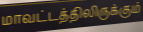
மாவட்டத்திலிருக்கும்